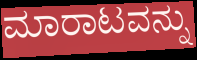
ಮಾರಾಟವನ್ನು